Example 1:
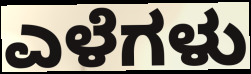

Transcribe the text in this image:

ಎಳೆಗಳು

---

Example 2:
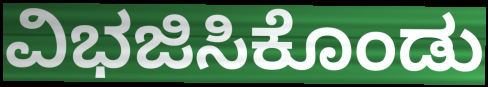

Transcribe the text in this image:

ವಿಭಜಿಸಿಕೊಂಡು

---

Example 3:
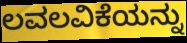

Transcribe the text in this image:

ಲವಲವಿಕೆಯನ್ನು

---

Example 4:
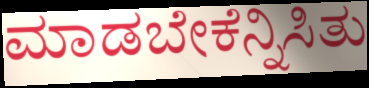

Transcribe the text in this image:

ಮಾಡಬೇಕೆನ್ನಿಸಿತು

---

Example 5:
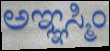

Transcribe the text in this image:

ಅಞ್ಞಸ್ಮಿಂ